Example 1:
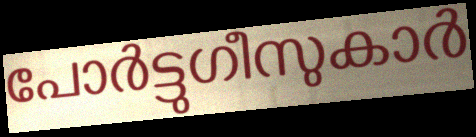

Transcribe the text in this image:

പോർട്ടുഗീസുകാർ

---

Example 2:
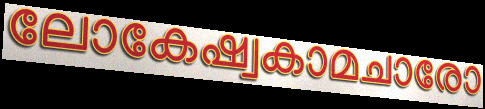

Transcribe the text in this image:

ലോകേഷ്വകാമചാരോ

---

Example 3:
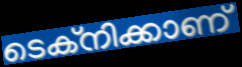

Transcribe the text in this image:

ടെക്നിക്കാണ്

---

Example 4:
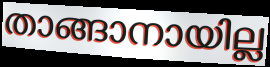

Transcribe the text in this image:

താങ്ങാനായില്ല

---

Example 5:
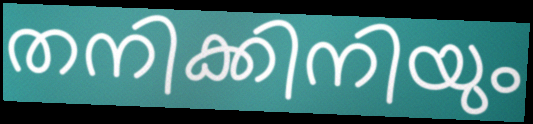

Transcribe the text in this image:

തനിക്കിനിയും